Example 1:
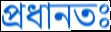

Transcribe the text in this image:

প্ৰধানতঃ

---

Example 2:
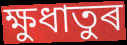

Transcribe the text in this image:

ক্ষুধাতুৰ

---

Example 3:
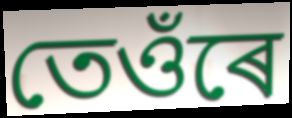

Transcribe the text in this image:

তেওঁৰে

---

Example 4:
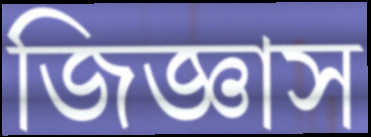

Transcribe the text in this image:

জিজ্ঞাস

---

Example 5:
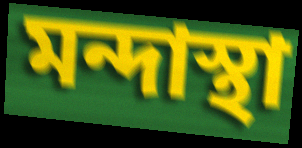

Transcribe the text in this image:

মন্দাস্থা